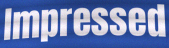
Impressed